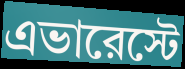
এভারেস্টে